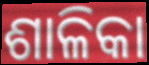
ଶାଳିକା